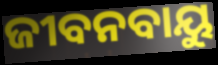
ଜୀବନବାୟୁ